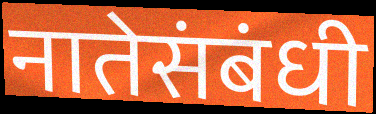
नातेसंबंधी